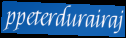
ppeterdurairaj